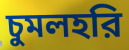
চুমলহরি